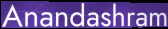
Anandashram